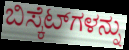
ಬಿಸ್ಕೆಟ್‌ಗಳನ್ನು